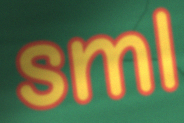
sml